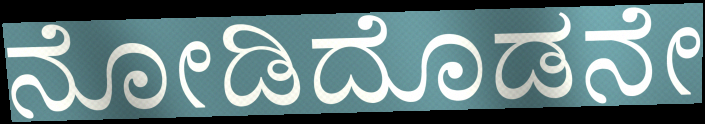
ನೋಡಿದೊಡನೇ